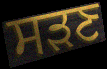
ਸੜਣ